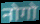
नोगो